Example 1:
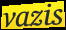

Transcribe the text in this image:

vazis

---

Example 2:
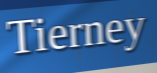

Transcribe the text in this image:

Tierney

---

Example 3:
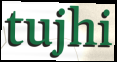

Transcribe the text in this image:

tujhi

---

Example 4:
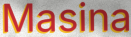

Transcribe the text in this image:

Masina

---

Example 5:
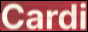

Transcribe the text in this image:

Cardi